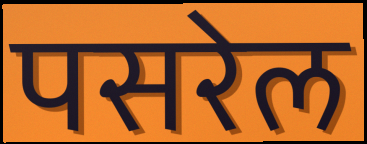
पसरेल